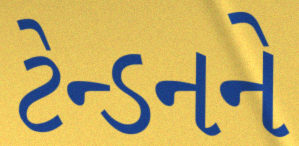
ટેન્ડનને